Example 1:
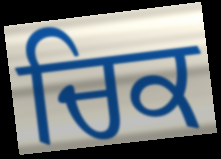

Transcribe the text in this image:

ਚਿਕ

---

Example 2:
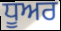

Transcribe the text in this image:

ਧੂਅਰ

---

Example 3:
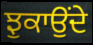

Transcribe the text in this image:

ਝੁਕਾਉਂਦੇ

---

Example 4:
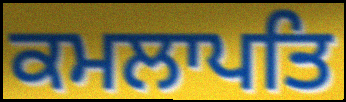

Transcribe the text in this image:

ਕਮਲਾਪਤਿ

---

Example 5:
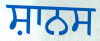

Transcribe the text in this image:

ਸ਼ਾਨਸ